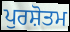
ਪੁਰਸ਼ੋਤਮ